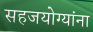
सहजयोग्यांना